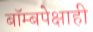
बॉम्बपेक्षाही